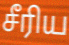
சீரிய